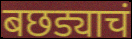
बछड्याचं